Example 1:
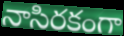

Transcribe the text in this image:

నాసిరకంగా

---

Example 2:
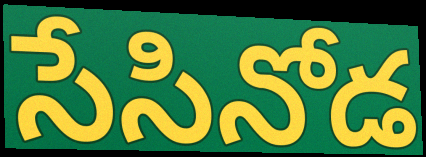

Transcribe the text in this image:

సేసినోడ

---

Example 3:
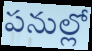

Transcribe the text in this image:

పనుల్లో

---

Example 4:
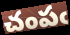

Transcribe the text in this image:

చంపఁ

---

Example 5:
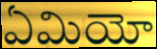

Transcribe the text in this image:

ఏమియో